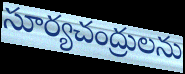
సూర్యచంద్రులను